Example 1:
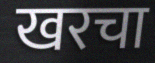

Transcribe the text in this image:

खरचा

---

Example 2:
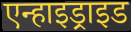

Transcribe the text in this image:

एन्हाइड्राइड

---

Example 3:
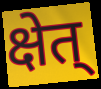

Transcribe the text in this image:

क्षेत्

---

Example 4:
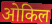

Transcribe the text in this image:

ओकिल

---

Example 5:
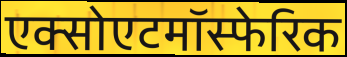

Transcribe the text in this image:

एक्सोएटमॉस्फेरिक